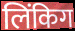
लिंकिग